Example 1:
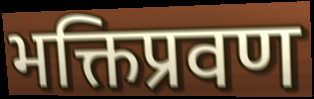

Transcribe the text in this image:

भक्तिप्रवण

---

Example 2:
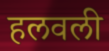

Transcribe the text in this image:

हलवली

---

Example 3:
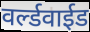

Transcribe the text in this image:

वर्ल्डवाईड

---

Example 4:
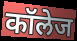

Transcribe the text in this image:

कॉलेज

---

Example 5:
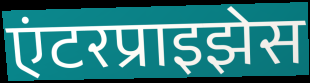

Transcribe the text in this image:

एंटरप्राइझेस